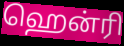
ஹென்ரி